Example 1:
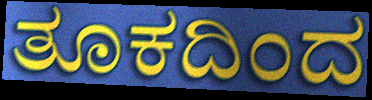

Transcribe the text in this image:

ತೂಕದಿಂದ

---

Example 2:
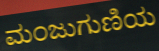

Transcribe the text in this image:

ಮಂಜುಗುಣಿಯ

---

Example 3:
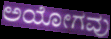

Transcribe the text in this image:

ಅಯೋಗವು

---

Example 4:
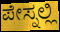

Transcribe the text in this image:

ಪೇಸ್ನಲ್ಲಿ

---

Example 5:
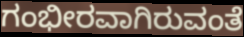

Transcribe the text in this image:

ಗಂಭೀರವಾಗಿರುವಂತೆ